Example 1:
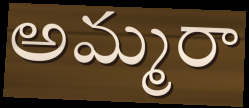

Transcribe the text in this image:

అమ్మరా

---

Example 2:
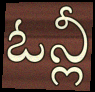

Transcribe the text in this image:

ఓన్లీ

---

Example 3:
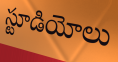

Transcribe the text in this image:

స్టూడియోలు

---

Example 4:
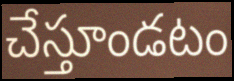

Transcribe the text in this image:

చేస్తూండటం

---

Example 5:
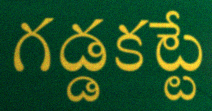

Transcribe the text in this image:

గడ్డకట్టే